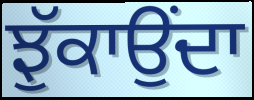
ਝੁੱਕਾਉਂਦਾ